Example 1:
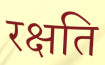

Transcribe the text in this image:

रक्षति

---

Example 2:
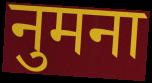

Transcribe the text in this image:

नुमना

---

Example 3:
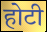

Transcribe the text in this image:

होटी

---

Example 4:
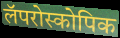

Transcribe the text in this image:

लॅपरोस्कोपिक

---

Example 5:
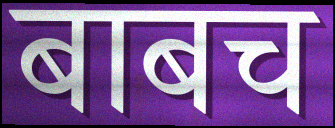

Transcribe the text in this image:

बाबच